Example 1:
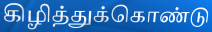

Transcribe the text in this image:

கிழித்துக்கொண்டு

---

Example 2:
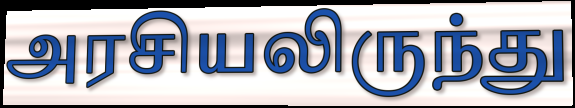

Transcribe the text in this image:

அரசியலிருந்து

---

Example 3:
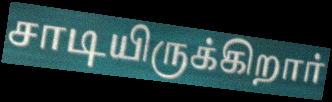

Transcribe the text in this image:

சாடியிருக்கிறார்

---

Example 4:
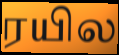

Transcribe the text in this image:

ரயில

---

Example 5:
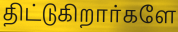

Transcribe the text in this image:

திட்டுகிறார்களே